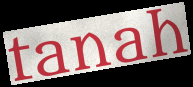
tanah